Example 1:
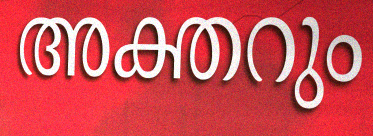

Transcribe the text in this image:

അക്തറും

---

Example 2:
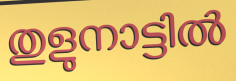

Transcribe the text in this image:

തുളുനാട്ടിൽ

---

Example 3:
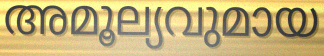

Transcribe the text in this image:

അമൂല്യവുമായ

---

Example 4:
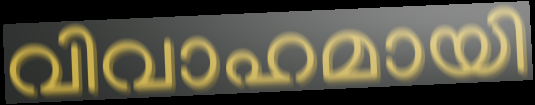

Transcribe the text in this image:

വിവാഹമായി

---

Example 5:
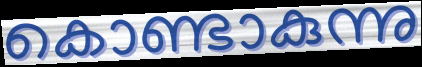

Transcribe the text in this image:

കൊണ്ടാകുന്നു